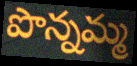
పొన్నమ్మ